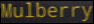
Mulberry